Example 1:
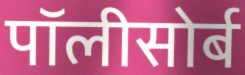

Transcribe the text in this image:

पॉलीसोर्ब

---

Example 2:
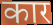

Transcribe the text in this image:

कार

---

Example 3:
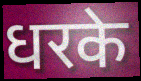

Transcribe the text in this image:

धरके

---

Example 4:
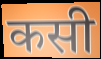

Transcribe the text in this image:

कसी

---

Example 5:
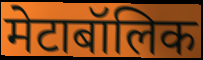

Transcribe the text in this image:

मेटाबॉलिक